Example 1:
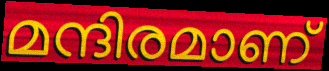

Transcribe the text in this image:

മന്ദിരമാണ്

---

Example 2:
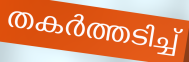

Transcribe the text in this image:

തകർത്തടിച്ച്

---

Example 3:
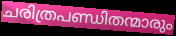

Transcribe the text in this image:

ചരിത്രപണ്ഡിതന്മാരും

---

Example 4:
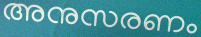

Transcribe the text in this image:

അനുസരണം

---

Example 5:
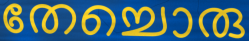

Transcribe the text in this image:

തേച്ചൊരു